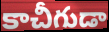
కాచీగుడా